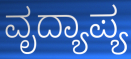
ವೃದ್ಯಾಪ್ಯ